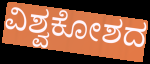
ವಿಶ್ವಕೋಶದ